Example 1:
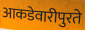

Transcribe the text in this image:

आकडेवारीपुरते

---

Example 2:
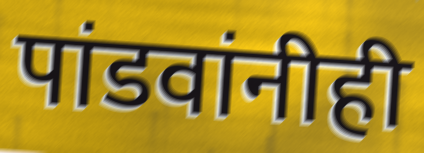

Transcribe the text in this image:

पांडवांनीही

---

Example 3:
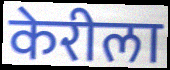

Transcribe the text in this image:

केरीला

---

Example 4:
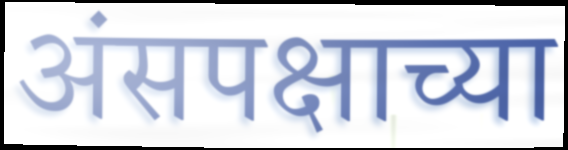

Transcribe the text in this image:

अंसपक्षाच्या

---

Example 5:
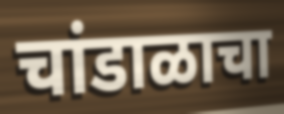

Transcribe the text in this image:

चांडाळाचा